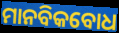
ମାନବିକବୋଧ